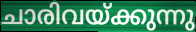
ചാരിവയ്ക്കുന്നു